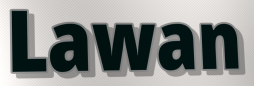
Lawan